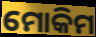
ମୋକିମ